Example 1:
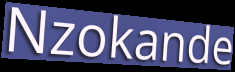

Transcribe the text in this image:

Nzokande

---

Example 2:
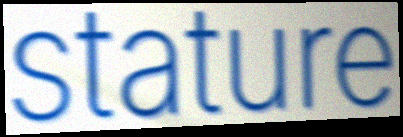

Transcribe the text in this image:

stature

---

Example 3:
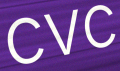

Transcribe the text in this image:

cvc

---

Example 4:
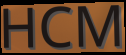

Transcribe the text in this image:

HCM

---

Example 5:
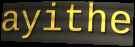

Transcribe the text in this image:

ayithe